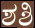
ಶಶಿ